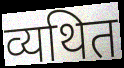
व्यथित